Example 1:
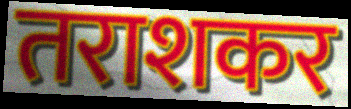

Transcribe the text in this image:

तराशकर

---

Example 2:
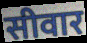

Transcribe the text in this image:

सीवार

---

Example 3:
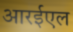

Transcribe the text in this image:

आरईएल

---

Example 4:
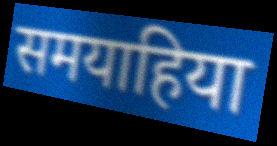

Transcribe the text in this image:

समयाहिया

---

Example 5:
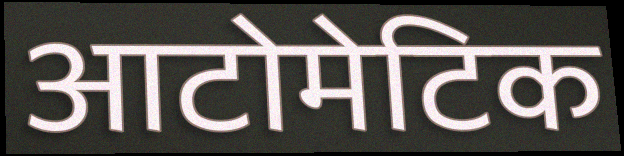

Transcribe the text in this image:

आटोमेटिक